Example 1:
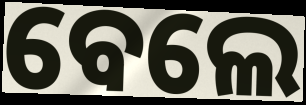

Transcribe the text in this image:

ବେଲେ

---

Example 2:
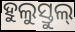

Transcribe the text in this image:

ହୁଲୁସ୍ତୁଲ୍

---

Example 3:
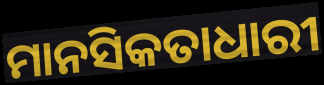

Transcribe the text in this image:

ମାନସିକତାଧାରୀ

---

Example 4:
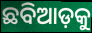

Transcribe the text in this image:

ଛବିଆଡ଼କୁ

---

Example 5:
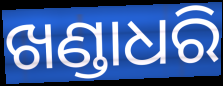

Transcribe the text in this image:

ଖଣ୍ଡାଧରି